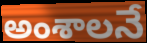
అంశాలనే